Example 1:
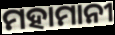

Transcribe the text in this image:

ମହାମାନୀ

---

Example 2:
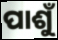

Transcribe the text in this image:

ପାଶୁଁ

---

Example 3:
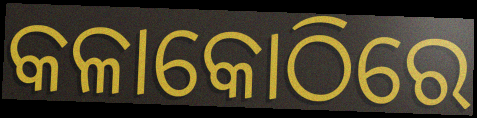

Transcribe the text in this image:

କଳାକୋଠିରେ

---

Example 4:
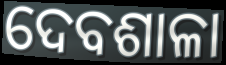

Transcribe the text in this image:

ଦେବଶାଳା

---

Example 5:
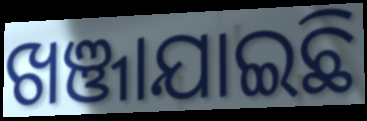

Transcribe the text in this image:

ଖଞ୍ଜାଯାଇଛି